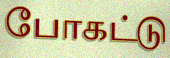
போகட்டு